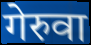
गेरुवा